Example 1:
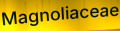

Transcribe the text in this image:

Magnoliaceae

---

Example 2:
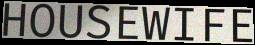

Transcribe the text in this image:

HOUSEWIFE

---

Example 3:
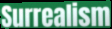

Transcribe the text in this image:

Surrealism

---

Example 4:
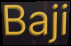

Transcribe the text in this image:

Baji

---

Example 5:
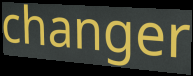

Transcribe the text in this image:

changer